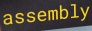
assembly